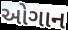
ઓગાન